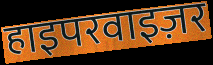
हाइपरवाइज़र